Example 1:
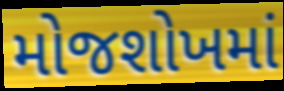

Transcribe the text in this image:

મોજશોખમાં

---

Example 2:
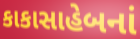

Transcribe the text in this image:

કાકાસાહેબનાં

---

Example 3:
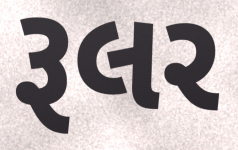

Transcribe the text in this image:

રૂલર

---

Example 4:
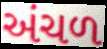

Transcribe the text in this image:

અંચળ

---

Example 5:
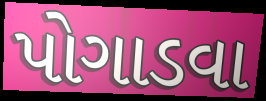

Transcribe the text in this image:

પોગાડવા